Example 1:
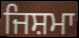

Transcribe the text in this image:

ਜਿਸ਼ਮਾ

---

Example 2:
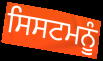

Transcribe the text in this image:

ਸਿਸਟਮਨੂੰ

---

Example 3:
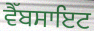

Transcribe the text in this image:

ਵੈੱਬਸਾਇਟ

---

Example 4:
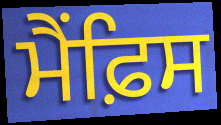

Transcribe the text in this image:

ਮੈਂਫ਼ਿਸ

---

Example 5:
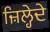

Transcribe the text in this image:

ਜ਼ਿਲ੍ਹੇਦੇ